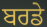
ਬਰਡੇ